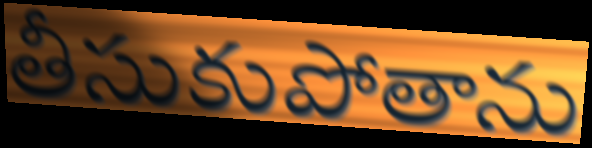
తీసుకుపోతాను